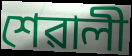
শেৱালী